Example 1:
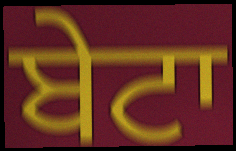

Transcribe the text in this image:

ਬੇਟਾ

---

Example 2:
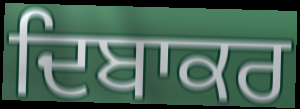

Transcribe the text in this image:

ਦਿਬਾਕਰ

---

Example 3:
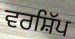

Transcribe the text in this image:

ਵਰਸ਼ਿੱਪ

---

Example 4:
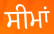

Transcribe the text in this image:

ਸੀਮਾਂ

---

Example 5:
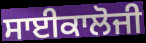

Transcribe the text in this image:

ਸਾਈਕਾਲੋਜੀ